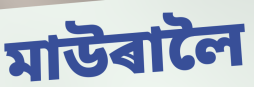
মাউৰালৈ